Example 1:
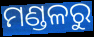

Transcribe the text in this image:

ମଣ୍ଡଳରୁ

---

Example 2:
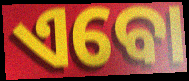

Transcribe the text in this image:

ଏବୋ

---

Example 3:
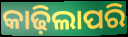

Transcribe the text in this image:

କାଢ଼ିଲାପରି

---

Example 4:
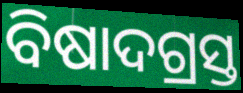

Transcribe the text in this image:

ବିଷାଦଗ୍ରସ୍ତ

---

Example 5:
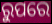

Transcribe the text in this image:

ରୁପରେ